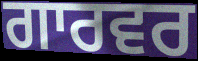
ਗਾਰਵਰ